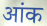
आंक